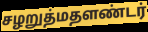
சழறுத்மதளண்டர்